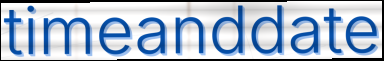
timeanddate